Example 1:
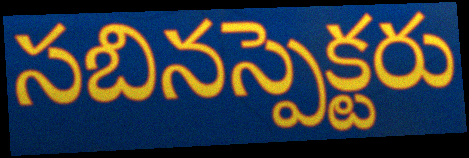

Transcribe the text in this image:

సబినస్పెక్టరు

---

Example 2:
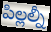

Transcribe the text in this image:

పిల్లల్నీ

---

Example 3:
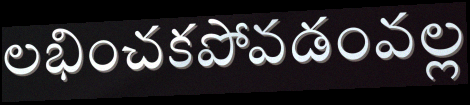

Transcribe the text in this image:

లభించకపోవడంవల్ల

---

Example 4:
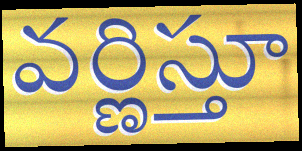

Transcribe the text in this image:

వర్ణిస్తూ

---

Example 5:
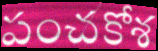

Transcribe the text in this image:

పంచకోశ